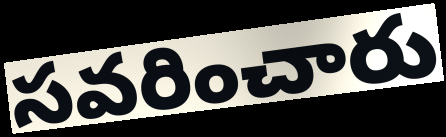
సవరించారు